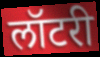
लॉटरी